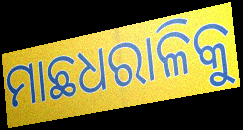
ମାଛଧରାଳିକୁ